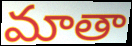
మాతా